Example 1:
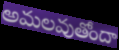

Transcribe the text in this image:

అమలవుతోందా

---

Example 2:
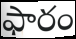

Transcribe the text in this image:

ఫారం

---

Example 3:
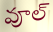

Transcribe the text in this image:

వూల్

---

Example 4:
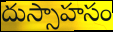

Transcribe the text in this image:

దుస్సాహసం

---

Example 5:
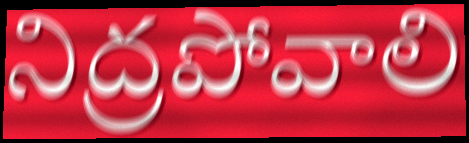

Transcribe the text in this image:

నిద్రపోవాలి